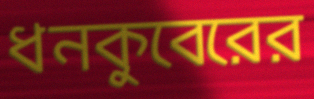
ধনকুবেরের